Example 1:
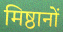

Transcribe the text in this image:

मिष्ठानों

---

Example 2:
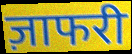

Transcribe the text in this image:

ज़ाफरी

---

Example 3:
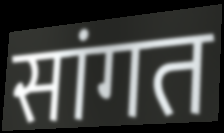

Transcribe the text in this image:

सांगत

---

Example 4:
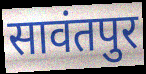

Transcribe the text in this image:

सावंतपुर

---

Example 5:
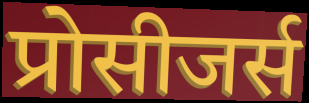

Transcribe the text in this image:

प्रोसीजर्स